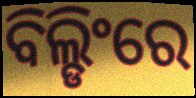
ବିଲ୍ଡିଂରେ